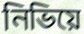
নিভিয়ে